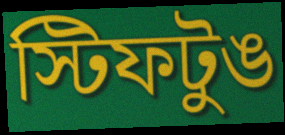
স্টিফটুঙ